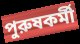
পুরুষকর্মী